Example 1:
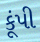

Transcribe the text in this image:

કૂંપી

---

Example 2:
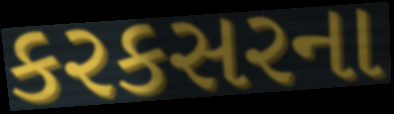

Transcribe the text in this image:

કરકસરના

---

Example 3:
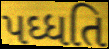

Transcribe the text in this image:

પઘ્ધતિ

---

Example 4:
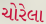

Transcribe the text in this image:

ચોરેલા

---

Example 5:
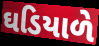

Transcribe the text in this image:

ઘડિયાળે